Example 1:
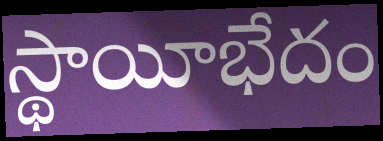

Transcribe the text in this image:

స్థాయీభేదం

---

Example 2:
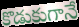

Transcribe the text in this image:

కొడుకుగానే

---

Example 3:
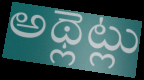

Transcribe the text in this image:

అథ్లెట్లు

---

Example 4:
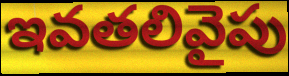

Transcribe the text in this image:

ఇవతలివైపు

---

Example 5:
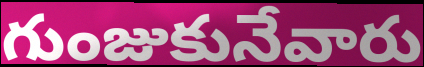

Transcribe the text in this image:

గుంజుకునేవారు